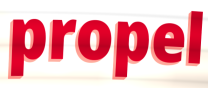
propel